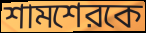
শামশেরকে